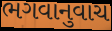
ભગવાનુવાચ